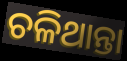
ଚଳିଥାନ୍ତା